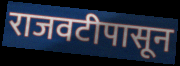
राजवटीपासून